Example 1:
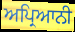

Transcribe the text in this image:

ਅਪ੍ਰਿਆਨੀ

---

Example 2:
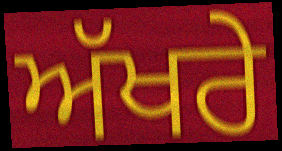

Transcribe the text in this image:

ਅੱਖਰੇ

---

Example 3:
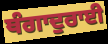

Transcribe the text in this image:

ਥੰਗਾਦੁਰਾਈ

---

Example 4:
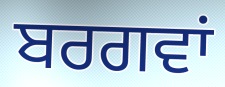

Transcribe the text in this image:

ਬਰਗਵਾਂ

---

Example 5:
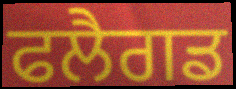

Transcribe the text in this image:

ਫਲੈਗਡ